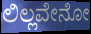
ಲಿಲ್ಲವೇನೋ